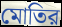
মোতির